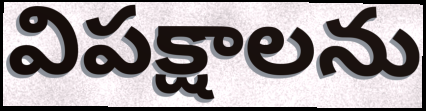
విపక్షాలను